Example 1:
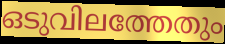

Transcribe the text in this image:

ഒടുവിലത്തേതും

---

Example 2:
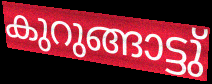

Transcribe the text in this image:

കുറുങ്ങാട്ടു്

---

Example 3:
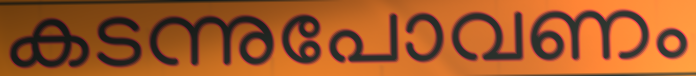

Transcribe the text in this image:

കടന്നുപോവണം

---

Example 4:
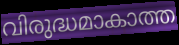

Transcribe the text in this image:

വിരുദ്ധമാകാത്ത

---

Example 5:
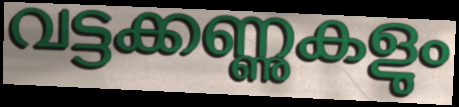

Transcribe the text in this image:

വട്ടക്കണ്ണുകളും